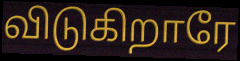
விடுகிறாரே